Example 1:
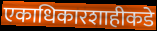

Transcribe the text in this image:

एकाधिकारशाहीकडे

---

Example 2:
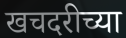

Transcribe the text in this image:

खचदरीच्या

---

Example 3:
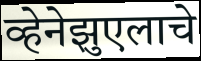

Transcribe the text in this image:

व्हेनेझुएलाचे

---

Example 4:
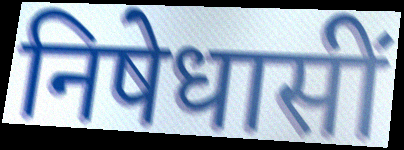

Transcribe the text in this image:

निषेधासीं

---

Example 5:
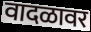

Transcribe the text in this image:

वादळावर